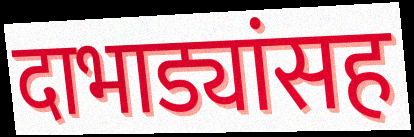
दाभाड्यांसह